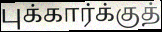
புக்கார்க்குத்